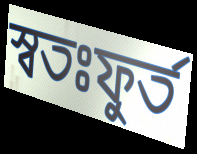
স্বতঃফুর্ত